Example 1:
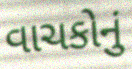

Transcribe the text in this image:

વાચકોનું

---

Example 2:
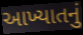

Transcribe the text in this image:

આખ્યાતનું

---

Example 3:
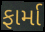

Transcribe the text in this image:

ફાર્મા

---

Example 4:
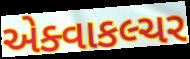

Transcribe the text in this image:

એક્વાકલ્ચર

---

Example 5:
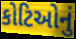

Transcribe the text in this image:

કોટિઓનું